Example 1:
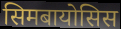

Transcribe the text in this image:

सिमबायोसिस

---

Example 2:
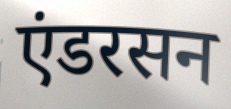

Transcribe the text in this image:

एंडरसन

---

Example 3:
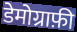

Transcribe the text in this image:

डेमोग्राफ़ी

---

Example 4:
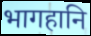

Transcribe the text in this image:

भागहानि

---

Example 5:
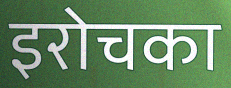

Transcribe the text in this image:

इरोचका